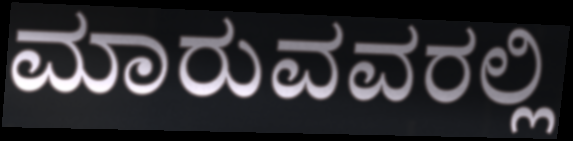
ಮಾರುವವರಲ್ಲಿ